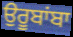
ਉਰੂਬਾਂਬਾ